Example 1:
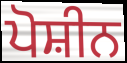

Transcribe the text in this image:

ਪੋਸ਼ੀਨ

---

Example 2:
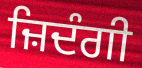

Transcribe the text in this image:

ਜ਼ਿਦੰਗੀ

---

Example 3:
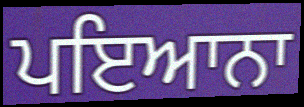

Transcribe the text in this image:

ਪਇਆਨਾ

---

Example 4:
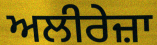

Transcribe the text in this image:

ਅਲੀਰੇਜ਼ਾ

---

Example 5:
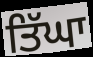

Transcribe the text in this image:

ਤਿੱਘਾ